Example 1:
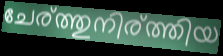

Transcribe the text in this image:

ചേര്ത്തുനിര്ത്തിയ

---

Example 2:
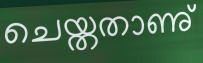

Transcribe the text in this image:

ചെയ്തതാണു്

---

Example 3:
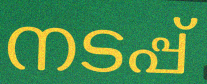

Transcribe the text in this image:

നടപ്പ്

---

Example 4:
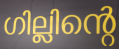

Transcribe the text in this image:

ഗില്ലിന്റെ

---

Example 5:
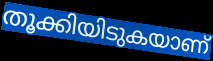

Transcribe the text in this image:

തൂക്കിയിടുകയാണ്